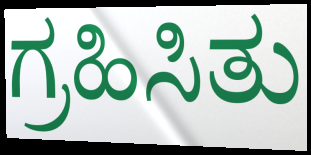
ಗ್ರಹಿಸಿತು